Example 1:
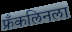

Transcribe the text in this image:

फ्रॅंकलिनला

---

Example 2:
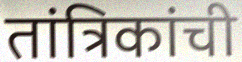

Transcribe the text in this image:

तांत्रिकांची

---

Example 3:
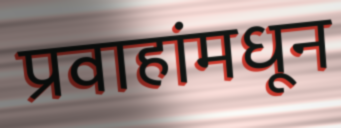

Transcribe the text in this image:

प्रवाहांमधून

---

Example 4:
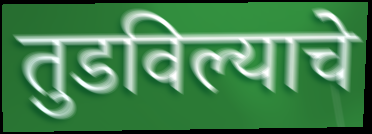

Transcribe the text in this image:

तुडविल्याचे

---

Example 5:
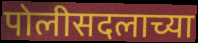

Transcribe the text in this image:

पोलीसदलाच्या